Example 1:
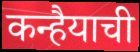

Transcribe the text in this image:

कन्हैयाची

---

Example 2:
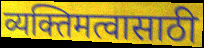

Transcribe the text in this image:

व्यक्तिमत्वासाठी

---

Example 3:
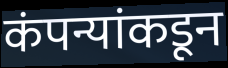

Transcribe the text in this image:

कंपन्यांकडून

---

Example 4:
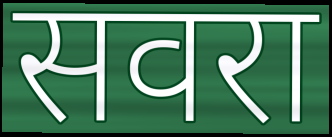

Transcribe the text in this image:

सवरा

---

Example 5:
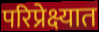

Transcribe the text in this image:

परिप्रेक्ष्यात